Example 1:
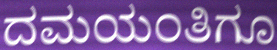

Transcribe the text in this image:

ದಮಯಂತಿಗೂ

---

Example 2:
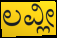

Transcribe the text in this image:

ಲವ್ಲೀ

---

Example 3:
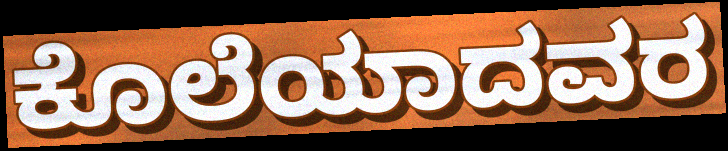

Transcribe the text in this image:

ಕೊಲೆಯಾದವರ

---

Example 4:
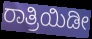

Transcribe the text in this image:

ರಾತ್ರಿಯಿಡೀ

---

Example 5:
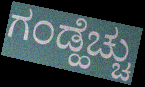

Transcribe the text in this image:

ಗಂಡ್ಹೆಚ್ಚು